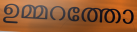
ഉമ്മറത്തോ